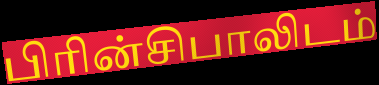
பிரின்சிபாலிடம்